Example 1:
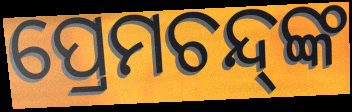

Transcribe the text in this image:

ପ୍ରେମଚନ୍ଦ୍‌ଙ୍କ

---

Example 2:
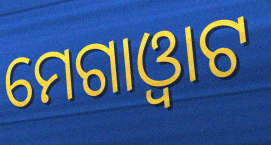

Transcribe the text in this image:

ମେଗାଓ୍ୱାଟ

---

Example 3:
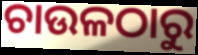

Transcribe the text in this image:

ଚାଉଳଠାରୁ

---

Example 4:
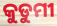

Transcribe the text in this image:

କୁଡୁମୀ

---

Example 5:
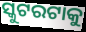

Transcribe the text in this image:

ସ୍କୁଟରଟାକୁ